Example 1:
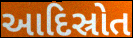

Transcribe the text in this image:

આદિસ્રોત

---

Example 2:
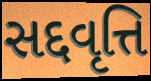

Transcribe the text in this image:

સદ્દવૃત્તિ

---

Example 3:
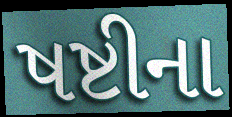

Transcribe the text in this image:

ષષ્ટીના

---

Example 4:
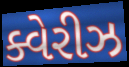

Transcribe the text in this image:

ક્વેરીઝ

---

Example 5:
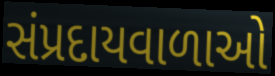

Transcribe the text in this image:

સંપ્રદાયવાળાઓ